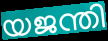
യജന്തി